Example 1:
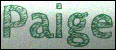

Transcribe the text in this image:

Paige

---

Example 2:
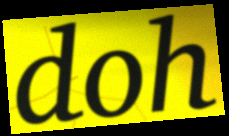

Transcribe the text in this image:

doh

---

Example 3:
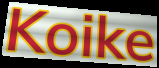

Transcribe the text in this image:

Koike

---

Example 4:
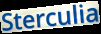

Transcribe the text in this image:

Sterculia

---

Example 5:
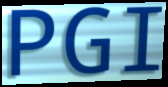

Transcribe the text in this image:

PGI